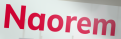
Naorem